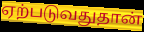
ஏற்படுவதுதான்